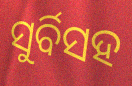
ସୁର୍ବିସହ